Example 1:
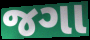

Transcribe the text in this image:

જગા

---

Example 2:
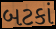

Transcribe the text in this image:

બટકાં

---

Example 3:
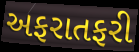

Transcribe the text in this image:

અફરાતફરી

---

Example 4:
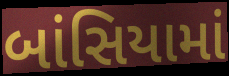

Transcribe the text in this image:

બાંસિયામાં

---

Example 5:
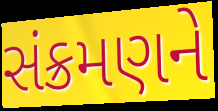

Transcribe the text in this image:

સંક્રમણને